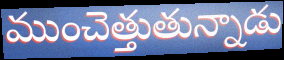
ముంచెత్తుతున్నాడు